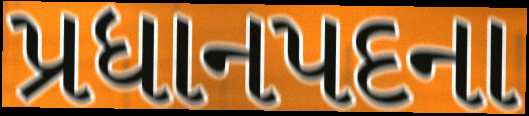
પ્રધાનપદના